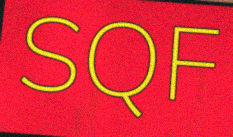
SQF